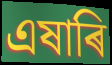
এষাৰি